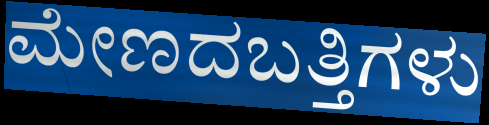
ಮೇಣದಬತ್ತಿಗಳು